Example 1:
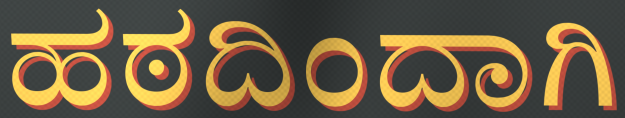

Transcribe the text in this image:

ಹಠದಿಂದಾಗಿ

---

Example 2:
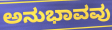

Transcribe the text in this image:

ಅನುಭಾವವು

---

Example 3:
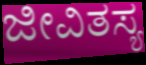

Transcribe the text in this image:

ಜೀವಿತಸ್ಯ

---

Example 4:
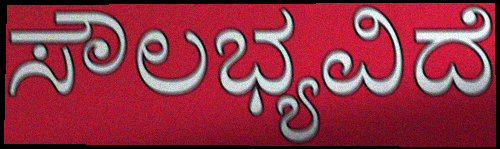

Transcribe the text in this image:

ಸೌಲಭ್ಯವಿದೆ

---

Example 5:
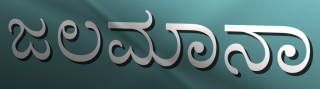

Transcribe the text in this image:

ಜಲಮಾನಾ